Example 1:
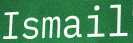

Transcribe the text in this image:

Ismail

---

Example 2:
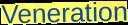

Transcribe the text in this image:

Veneration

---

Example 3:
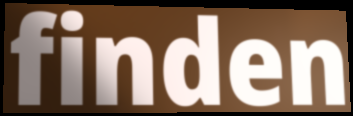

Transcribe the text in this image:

finden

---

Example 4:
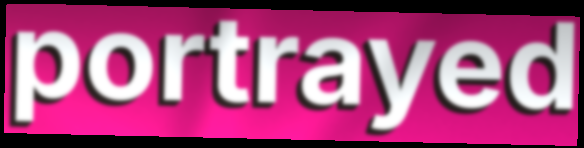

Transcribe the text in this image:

portrayed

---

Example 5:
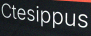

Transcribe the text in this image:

Ctesippus